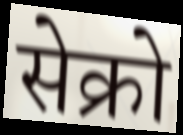
सेक्रो